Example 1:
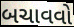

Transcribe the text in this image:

બચાવવો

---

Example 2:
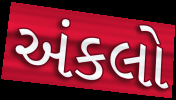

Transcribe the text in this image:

અંકલો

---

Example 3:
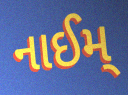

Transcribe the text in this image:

નાઈમ્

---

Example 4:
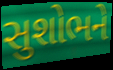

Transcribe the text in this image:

સુશોભને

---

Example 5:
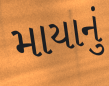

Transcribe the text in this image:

માયાનું